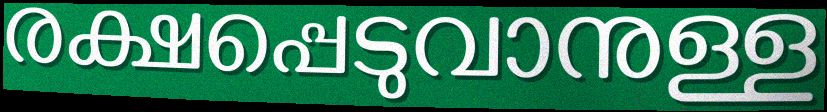
രക്ഷപ്പെടുവാനുള്ള